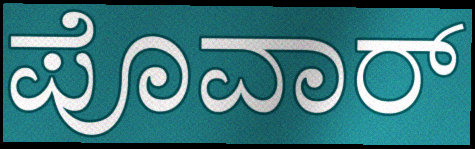
ಪೊವಾರ್